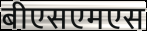
बीएसएमएस